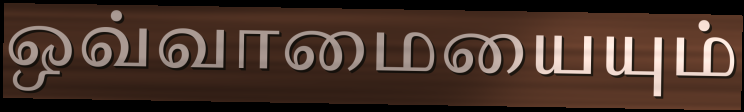
ஒவ்வாமையையும்